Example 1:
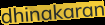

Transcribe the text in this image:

dhinakaran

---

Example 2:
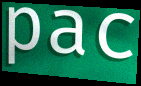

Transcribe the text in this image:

pac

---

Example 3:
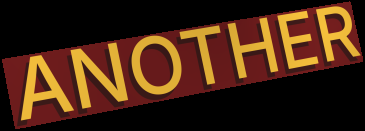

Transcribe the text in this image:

ANOTHER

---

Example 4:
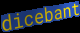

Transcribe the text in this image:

dicebant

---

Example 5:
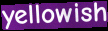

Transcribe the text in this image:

yellowish